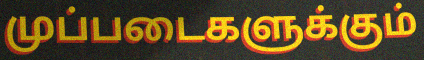
முப்படைகளுக்கும்